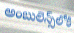
అంబులెన్స్‌లోకి